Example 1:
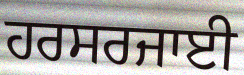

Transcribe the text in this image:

ਹਰਸਰਜਾਈ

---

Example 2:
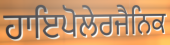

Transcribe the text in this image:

ਹਾਇਪੋਲੇਰਜੈਨਿਕ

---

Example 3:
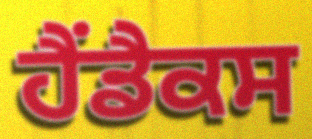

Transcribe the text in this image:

ਹੈਂਡੈਕਸ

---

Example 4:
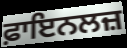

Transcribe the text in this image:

ਫ਼ਾਇਨਲਜ਼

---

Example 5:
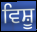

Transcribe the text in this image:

ਵਿਸ਼ੂ